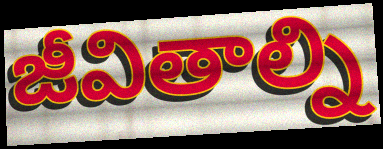
జీవితాల్ని